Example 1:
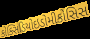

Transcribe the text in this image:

કોક્સિડિયોઇડોમીકોસિસ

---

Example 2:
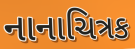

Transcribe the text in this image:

નાનાચિત્રક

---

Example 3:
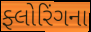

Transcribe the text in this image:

ફ્લોરિંગના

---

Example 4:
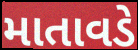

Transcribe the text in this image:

માતાવડે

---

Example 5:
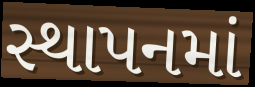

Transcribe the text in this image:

સ્થાપનમાં